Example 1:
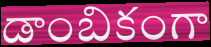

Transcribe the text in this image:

డాంబికంగా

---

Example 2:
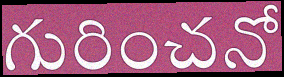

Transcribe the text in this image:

గురించనో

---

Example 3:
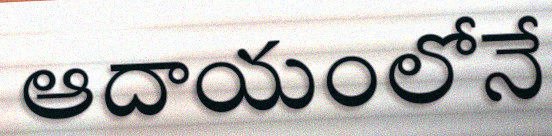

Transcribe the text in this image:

ఆదాయంలోనే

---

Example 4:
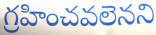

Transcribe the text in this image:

గ్రహించవలెనని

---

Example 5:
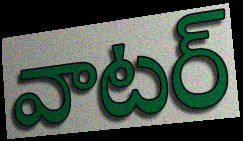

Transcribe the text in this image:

వాటర్